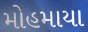
મોહમાયા